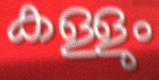
കള്ളും